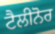
ਟੈਲੀਨੋਰ